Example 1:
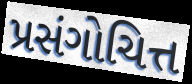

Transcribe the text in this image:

પ્રસંગોચિત્ત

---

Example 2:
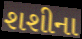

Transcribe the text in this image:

શશીના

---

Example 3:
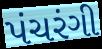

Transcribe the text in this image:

પંચરંગી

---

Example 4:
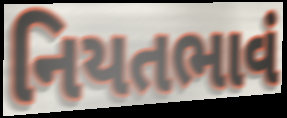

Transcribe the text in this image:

નિયતભાવં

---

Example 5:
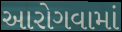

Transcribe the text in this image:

આરોગવામાં